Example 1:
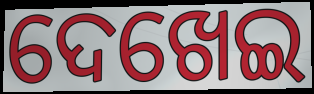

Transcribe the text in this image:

ଦେଖେଇ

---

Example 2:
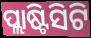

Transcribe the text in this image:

ପ୍ଲାଷ୍ଟିସିଟି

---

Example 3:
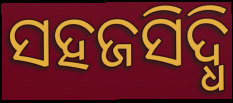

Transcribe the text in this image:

ସହଜସିଦ୍ଧି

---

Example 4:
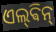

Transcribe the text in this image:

ଏଲ୍‌ଵିନ୍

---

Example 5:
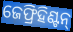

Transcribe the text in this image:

ଜେଫ୍ରିହିଣ୍ଟନ୍